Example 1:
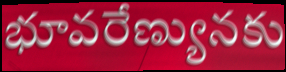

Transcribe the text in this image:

భూవరేణ్యునకు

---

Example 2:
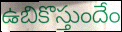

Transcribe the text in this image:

ఉబికొస్తుందేం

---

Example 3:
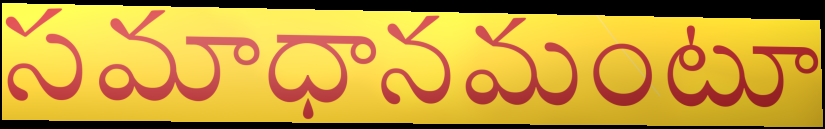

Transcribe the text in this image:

సమాధానమంటూ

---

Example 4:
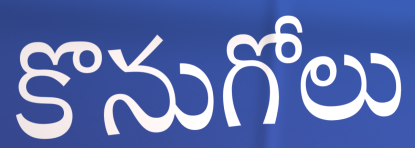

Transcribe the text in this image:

కొనుగోలు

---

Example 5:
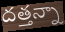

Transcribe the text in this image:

దత్తన్నా